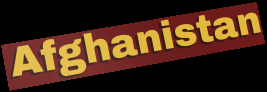
Afghanistan